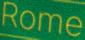
Rome